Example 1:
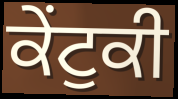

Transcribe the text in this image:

ਕੇਂਟੁਕੀ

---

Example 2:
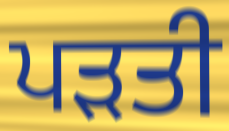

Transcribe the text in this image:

ਪੜਤੀ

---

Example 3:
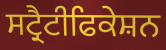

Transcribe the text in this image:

ਸਟ੍ਰੈਟੀਫਿਕੇਸ਼ਨ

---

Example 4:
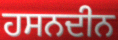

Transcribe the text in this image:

ਹਸਨਦੀਨ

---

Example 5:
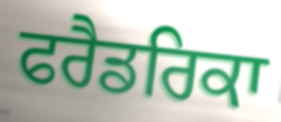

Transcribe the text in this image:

ਫਰੈਡਰਿਕਾ